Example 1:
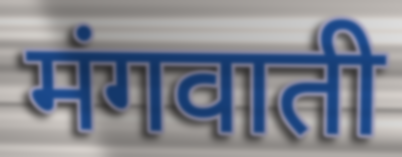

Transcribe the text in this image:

मंगवाती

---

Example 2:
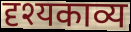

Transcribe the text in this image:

दृश्यकाव्य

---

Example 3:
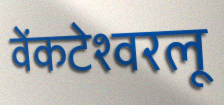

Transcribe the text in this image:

वेंकटेश्वरलू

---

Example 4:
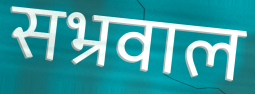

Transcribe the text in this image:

सभ्रवाल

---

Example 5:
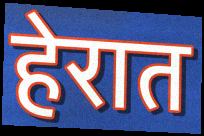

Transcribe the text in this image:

हेरात